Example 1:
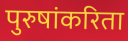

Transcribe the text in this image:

पुरुषांकरिता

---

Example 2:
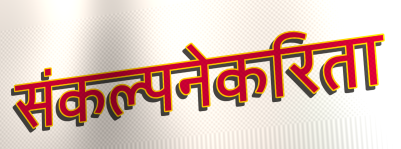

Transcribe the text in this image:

संकल्पनेकरिता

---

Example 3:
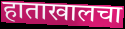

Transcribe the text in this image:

हाताखालचा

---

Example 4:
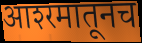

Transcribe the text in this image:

आश्रमातूनच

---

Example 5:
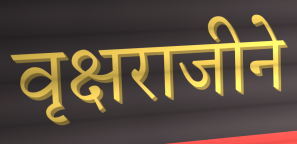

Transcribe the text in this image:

वृक्षराजीने